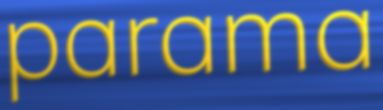
parama